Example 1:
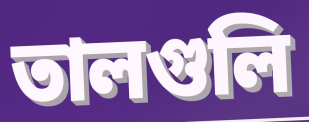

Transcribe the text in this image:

তালগুলি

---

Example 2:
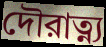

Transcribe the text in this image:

দৌরাত্ন্য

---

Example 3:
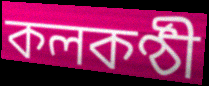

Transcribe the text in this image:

কলকণ্ঠী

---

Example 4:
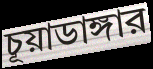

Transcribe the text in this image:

চূয়াডাঙ্গার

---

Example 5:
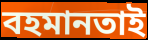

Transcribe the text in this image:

বহমানতাই